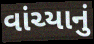
વાંચ્યાનું